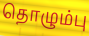
தொழும்பு